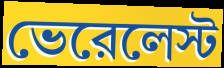
ভেরেলেস্ট